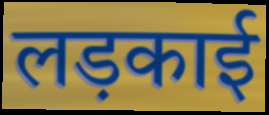
लड़काई